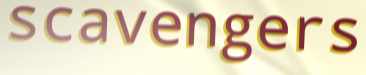
scavengers